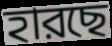
হারছে